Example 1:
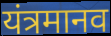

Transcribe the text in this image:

यंत्रमानव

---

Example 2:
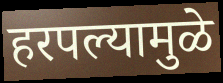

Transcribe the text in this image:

हरपल्यामुळे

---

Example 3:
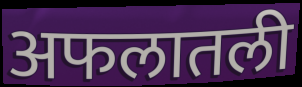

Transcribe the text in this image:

अफलातली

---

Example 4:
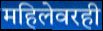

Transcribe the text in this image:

महिलेवरही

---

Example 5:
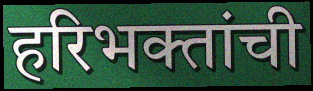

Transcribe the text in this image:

हरिभक्तांची